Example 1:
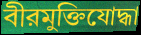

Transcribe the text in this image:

বীরমুক্তিযোদ্ধা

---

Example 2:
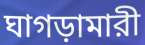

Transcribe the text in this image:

ঘাগড়ামারী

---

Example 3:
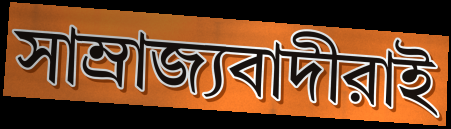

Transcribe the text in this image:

সাম্রাজ্যবাদীরাই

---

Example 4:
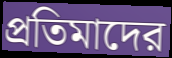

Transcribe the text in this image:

প্রতিমাদের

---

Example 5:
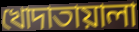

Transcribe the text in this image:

খোদাতায়ালা